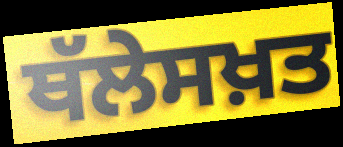
ਥੱਲੇਸਖ਼ਤ